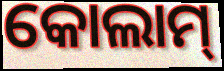
କୋଲାମ୍